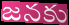
జనకు